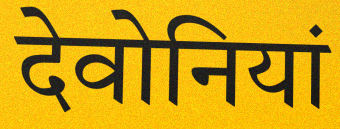
देवोनियां